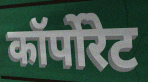
कॉर्पोरेट